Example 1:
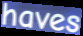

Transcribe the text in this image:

haves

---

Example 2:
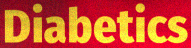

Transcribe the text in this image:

Diabetics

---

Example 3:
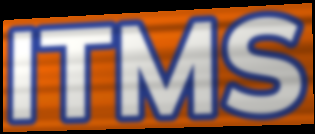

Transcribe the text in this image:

ITMS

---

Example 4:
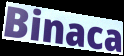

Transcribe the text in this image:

Binaca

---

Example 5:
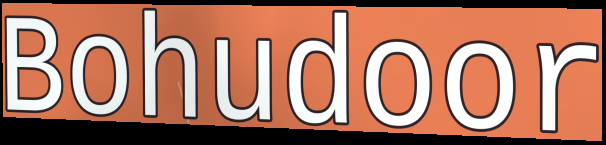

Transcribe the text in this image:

Bohudoor